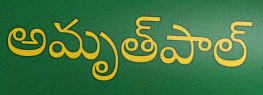
అమృత్‌పాల్